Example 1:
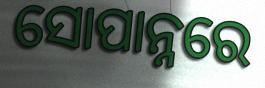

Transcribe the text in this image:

ସୋପାନ୍ନରେ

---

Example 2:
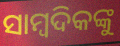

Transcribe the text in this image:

ସାମ୍ବଦିକଙ୍କୁ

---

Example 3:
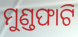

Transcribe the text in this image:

ମୁଣ୍ଡଫାଟି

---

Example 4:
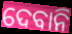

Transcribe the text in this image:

ଦେବାନି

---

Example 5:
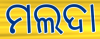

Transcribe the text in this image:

ମଲଦା